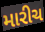
મારીચ